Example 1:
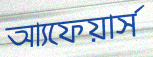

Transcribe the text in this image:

আ্যফেয়ার্স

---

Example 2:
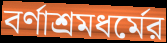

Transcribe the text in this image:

বর্ণাশ্রমধর্মের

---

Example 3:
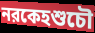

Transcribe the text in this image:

নরকেহশুচৌ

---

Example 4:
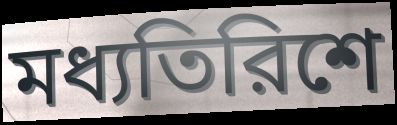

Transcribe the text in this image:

মধ্যতিরিশে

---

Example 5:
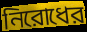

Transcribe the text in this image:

নিরোধের